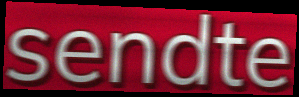
sendte